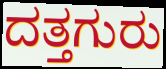
ದತ್ತಗುರು